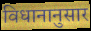
विधानानुसार